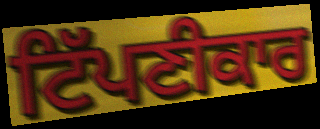
ਟਿੱਪਣੀਕਾਰ